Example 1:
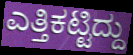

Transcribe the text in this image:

ಎತ್ತಿಕಟ್ಟಿದ್ದು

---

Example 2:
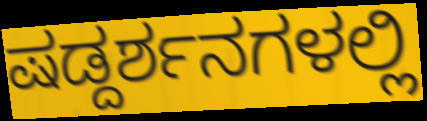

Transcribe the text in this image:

ಷಡ್ದರ್ಶನಗಳಲ್ಲಿ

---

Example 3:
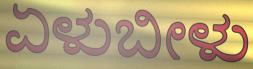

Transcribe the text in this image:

ಏಳುಬೀಳು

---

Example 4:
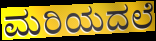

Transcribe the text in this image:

ಮರಿಯದಲೆ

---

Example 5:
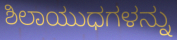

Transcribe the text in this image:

ಶಿಲಾಯುಧಗಳನ್ನು